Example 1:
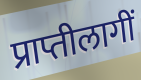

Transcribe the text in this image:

प्राप्तीलागीं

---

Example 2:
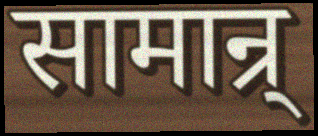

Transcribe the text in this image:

सामान्र्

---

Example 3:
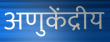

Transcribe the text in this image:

अणुकेंद्रीय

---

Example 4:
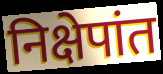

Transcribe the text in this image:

निक्षेपांत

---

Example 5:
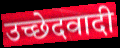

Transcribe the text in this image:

उच्छेदवादी